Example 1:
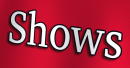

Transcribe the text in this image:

Shows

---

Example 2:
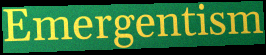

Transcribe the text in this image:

Emergentism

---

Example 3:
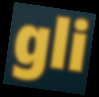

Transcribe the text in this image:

gli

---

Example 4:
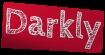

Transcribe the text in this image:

Darkly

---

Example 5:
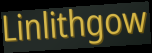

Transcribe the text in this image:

Linlithgow